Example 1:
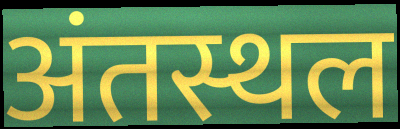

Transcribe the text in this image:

अंतस्थल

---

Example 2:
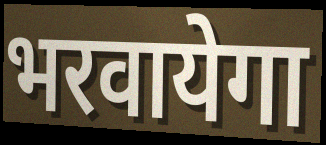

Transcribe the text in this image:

भरवायेगा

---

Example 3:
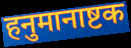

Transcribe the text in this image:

हनुमानाष्टक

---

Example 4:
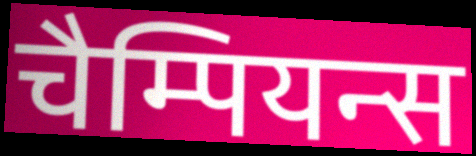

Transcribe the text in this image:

चैम्पियन्स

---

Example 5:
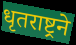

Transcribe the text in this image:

धृतराष्ट्रने